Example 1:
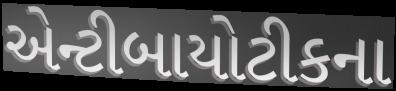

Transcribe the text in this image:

એન્ટીબાયોટીકના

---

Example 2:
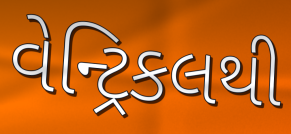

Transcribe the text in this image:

વેન્ટ્રિકલથી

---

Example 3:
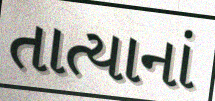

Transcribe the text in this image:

તાત્યાનાં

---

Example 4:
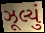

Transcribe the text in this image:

ઝૂલ્યું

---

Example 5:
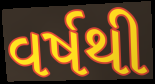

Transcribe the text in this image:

વર્ષથી